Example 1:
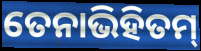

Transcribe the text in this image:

ତେନାଭିହିତମ୍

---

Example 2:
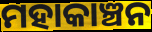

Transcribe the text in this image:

ମହାକାଞ୍ଚନ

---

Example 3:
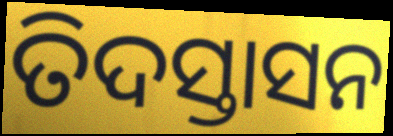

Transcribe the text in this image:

ତିଦସ୍ତାସନ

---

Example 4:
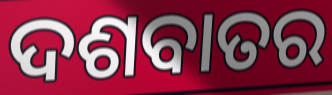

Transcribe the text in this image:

ଦଶବାତର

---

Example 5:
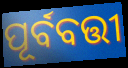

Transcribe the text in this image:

ପୂର୍ବବତ୍ତୀ